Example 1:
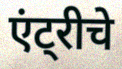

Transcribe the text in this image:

एंट्रीचे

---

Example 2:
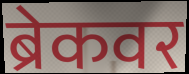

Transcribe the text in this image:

ब्रेकवर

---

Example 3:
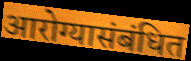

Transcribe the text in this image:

आरोग्यासंबंधित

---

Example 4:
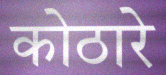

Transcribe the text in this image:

कोठारे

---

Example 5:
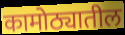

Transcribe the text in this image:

कामोठ्यातील